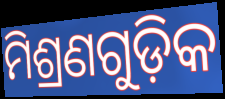
ମିଶ୍ରଣଗୁଡ଼ିକ